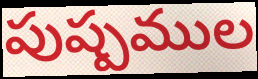
పుష్పముల